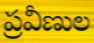
ప్రవీణుల